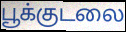
பூக்குடலை